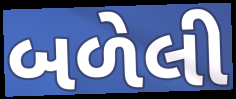
બળેલી